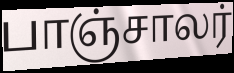
பாஞ்சாலர்